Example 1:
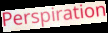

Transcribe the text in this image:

Perspiration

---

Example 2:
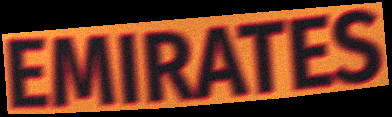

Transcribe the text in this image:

EMIRATES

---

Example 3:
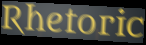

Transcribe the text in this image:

Rhetoric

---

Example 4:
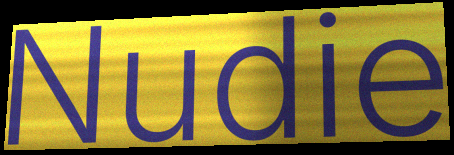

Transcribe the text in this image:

Nudie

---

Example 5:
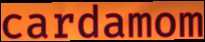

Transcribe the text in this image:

cardamom